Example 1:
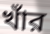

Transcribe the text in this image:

খাঁর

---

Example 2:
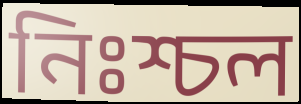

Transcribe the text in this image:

নিঃশ্চল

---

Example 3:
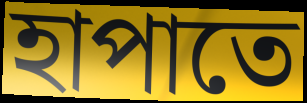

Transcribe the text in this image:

হাপাতে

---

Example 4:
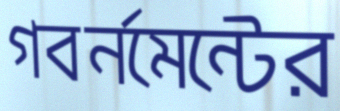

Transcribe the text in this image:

গবর্নমেন্টের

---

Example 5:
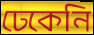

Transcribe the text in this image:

ঢেকেনি